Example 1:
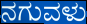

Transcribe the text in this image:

ನಗುವಳು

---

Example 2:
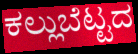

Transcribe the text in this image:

ಕಲ್ಲುಬೆಟ್ಟದ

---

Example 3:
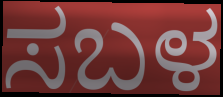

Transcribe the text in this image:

ಸಬಳ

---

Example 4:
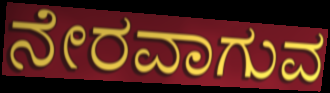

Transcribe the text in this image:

ನೇರವಾಗುವ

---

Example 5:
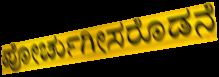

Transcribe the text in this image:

ಪೋರ್ಚುಗೀಸರೊಡನೆ